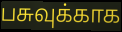
பசுவுக்காக